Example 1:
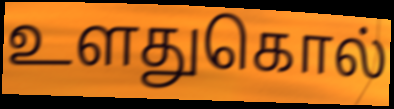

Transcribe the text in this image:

உளதுகொல்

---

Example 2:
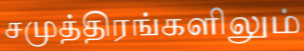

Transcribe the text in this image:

சமுத்திரங்களிலும்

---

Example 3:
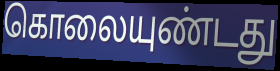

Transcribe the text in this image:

கொலையுண்டது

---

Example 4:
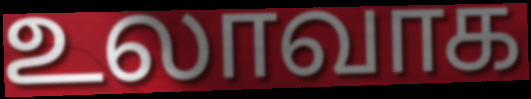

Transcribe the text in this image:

உலாவாக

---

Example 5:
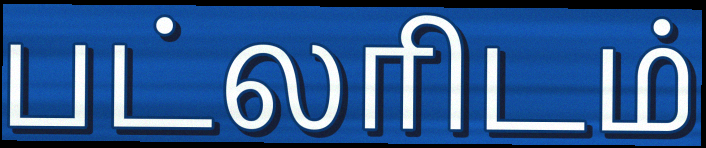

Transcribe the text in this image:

பட்லரிடம்